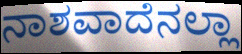
ನಾಶವಾದೆನಲ್ಲಾ